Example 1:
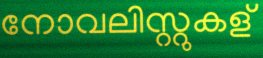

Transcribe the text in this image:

നോവലിസ്റ്റുകള്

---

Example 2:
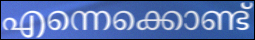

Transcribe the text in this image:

എന്നെക്കൊണ്ട്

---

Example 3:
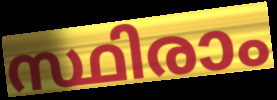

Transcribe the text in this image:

സ്ഥിരാം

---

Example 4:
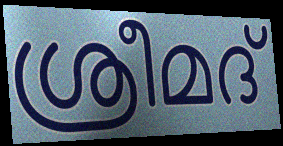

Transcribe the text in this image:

ശ്രീമദ്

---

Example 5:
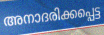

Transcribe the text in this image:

അനാദരിക്കപ്പെട്ട